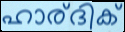
ഹാര്ദിക്